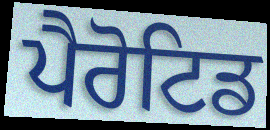
ਪੈਰੋਟਿਡ